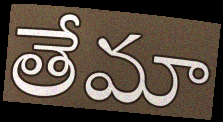
తేమా